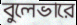
বুলেভারে